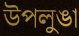
উপলুঙা